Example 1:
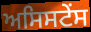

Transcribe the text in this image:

ਅਸਿਸਟੇਂਸ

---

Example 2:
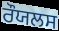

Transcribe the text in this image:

ਰੌਯਲਸ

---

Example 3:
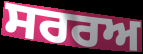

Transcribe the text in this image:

ਸਰਰਅ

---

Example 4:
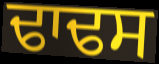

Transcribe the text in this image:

ਢਾਢਸ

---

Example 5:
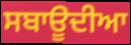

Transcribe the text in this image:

ਸਬਾਊਦੀਆ